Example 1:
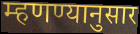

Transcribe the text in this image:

म्हणण्यानुसार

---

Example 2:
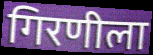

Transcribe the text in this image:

गिरणीला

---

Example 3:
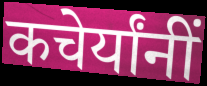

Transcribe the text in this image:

कचेर्यांनीं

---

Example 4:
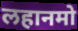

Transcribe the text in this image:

लहानमो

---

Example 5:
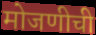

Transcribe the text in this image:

मोजणीची